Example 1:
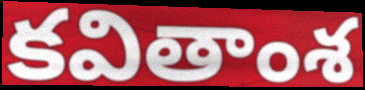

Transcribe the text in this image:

కవితాంశ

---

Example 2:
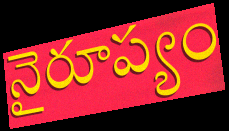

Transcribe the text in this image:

నైరూప్యం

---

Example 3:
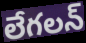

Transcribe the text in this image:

లేగలన్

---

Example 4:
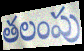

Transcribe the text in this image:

తలంపు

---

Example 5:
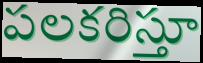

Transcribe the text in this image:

పలకరిస్తూ